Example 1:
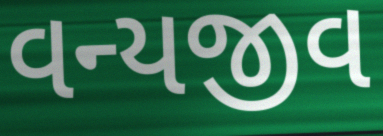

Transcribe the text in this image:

વન્યજીવ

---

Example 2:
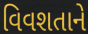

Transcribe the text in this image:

વિવશતાને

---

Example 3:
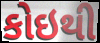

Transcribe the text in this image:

કોઇથી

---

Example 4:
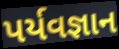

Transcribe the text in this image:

પર્યવજ્ઞાન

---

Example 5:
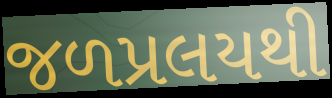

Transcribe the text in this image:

જળપ્રલયથી